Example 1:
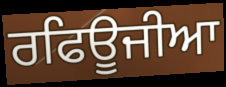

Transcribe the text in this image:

ਰਫਿਊਜੀਆ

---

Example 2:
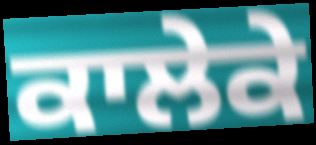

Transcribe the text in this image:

ਕਾਲੇਕੇ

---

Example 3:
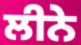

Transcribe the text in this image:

ਲੀਨੇ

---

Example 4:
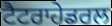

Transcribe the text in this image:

ਟੈਟਰਾਹੇਡਰਲ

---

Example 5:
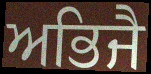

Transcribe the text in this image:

ਅਭਿਜੈ